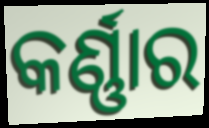
କର୍ଣ୍ଣାର